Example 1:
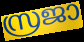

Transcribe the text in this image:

സ്രജാ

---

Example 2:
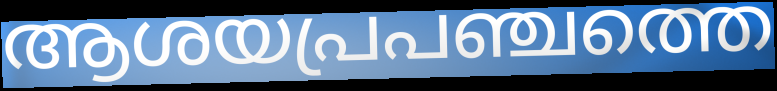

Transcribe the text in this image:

ആശയപ്രപഞ്ചത്തെ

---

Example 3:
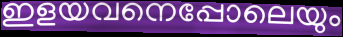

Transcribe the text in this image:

ഇളയവനെപ്പോലെയും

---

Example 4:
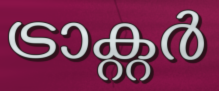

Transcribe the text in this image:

ട്രാക്റ്റർ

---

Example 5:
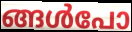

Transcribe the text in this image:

ങ്ങൾപോ